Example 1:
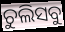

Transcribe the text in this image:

ଚୁଲିସବୁ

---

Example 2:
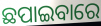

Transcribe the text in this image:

ଛପାଇବାରେ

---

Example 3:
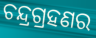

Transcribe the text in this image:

ଚନ୍ଦ୍ରଗ୍ରହଣର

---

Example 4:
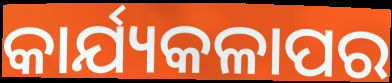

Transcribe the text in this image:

କାର୍ଯ୍ୟକଳାପର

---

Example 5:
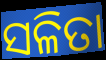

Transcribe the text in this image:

ସଳିତା